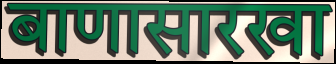
बाणासारखा